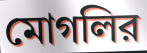
মোগলির